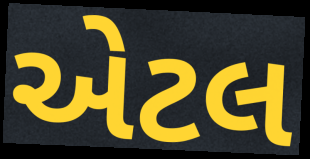
એટલ